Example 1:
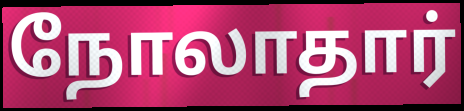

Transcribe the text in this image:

நோலாதார்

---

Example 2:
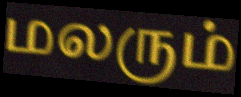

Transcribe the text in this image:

மலரும்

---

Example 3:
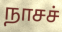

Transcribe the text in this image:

நாசச்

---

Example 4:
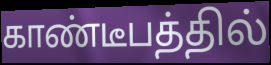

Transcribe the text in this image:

காண்டீபத்தில்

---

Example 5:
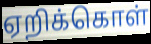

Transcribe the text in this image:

ஏறிக்கொள்